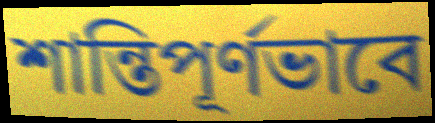
শান্তিপূর্ণভাবে